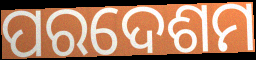
ପରଦେଶମ